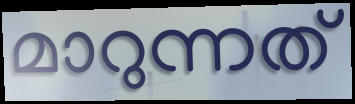
മാറുന്നത്